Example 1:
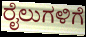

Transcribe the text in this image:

ರೈಲುಗಳಿಗೆ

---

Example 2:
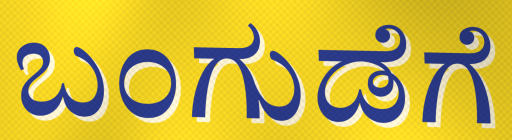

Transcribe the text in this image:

ಬಂಗುಡೆಗೆ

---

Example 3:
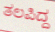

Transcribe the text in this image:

ತಲಪಿದ್ದ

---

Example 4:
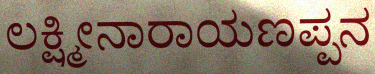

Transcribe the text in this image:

ಲಕ್ಷ್ಮೀನಾರಾಯಣಪ್ಪನ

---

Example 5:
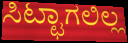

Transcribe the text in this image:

ಸಿಟ್ಟಾಗಲಿಲ್ಲ